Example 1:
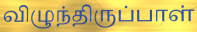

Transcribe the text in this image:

விழுந்திருப்பாள்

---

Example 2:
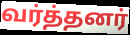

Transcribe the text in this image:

வர்த்தனர்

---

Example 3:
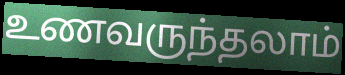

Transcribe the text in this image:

உணவருந்தலாம்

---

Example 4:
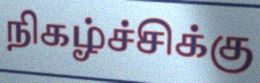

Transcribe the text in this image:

நிகழ்ச்சிக்கு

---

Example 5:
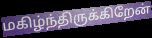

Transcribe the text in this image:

மகிழ்ந்திருக்கிறேன்